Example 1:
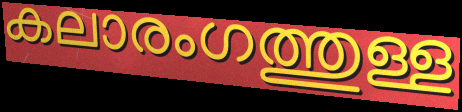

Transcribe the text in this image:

കലാരംഗത്തുള്ള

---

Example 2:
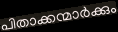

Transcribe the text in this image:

പിതാക്കന്മാർക്കും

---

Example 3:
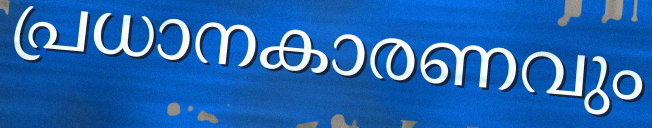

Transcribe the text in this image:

പ്രധാനകാരണവും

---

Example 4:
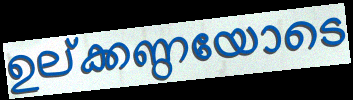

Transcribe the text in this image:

ഉല്ക്കണ്ഠയോടെ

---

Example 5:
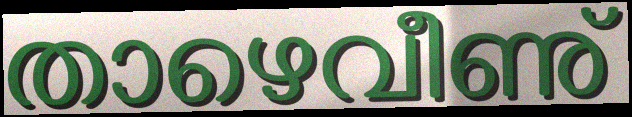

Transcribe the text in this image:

താഴെവീണു്